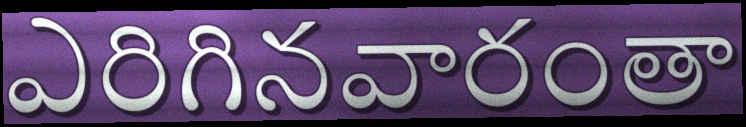
ఎరిగినవారంతా